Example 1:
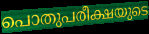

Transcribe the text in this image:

പൊതുപരീക്ഷയുടെ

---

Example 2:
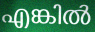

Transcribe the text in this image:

എങ്കിൽ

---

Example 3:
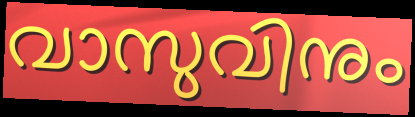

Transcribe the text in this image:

വാസുവിനും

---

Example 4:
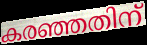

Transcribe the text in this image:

കരഞ്ഞതിന്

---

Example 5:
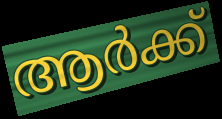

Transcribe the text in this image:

ആർക്ക്